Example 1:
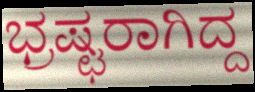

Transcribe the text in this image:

ಭ್ರಷ್ಟರಾಗಿದ್ದ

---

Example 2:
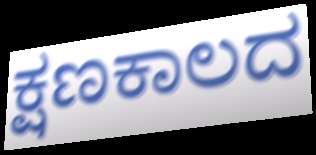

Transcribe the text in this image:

ಕ್ಷಣಕಾಲದ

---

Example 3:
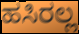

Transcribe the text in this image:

ಹಸಿರಲ್ಲ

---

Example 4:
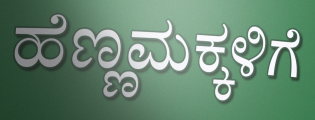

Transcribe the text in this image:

ಹೆಣ್ಣಮಕ್ಕಳಿಗೆ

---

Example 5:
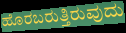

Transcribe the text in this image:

ಹೊರಬರುತ್ತಿರುವುದು